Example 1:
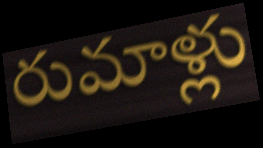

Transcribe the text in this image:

రుమాళ్లు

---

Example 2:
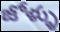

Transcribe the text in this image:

జోళ్ళు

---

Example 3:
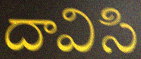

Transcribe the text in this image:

దావిసి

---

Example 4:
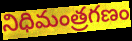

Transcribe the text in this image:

నిధిమంత్రగణం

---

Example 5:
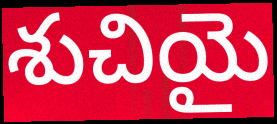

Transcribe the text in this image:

శుచియై